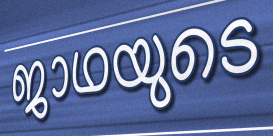
ജാഥയുടെ